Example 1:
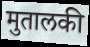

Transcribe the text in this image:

मुतालकी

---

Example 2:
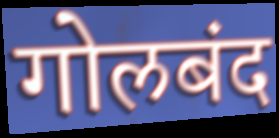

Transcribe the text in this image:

गोलबंद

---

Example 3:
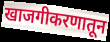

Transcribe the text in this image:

खाजगीकरणातून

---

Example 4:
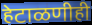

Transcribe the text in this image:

हेटाळणीही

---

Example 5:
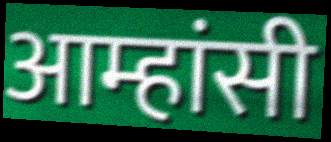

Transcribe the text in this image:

आम्हांसी